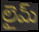
లైమ్